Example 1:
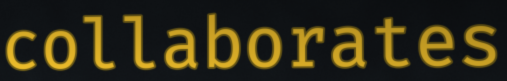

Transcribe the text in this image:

collaborates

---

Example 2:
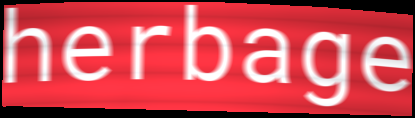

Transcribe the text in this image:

herbage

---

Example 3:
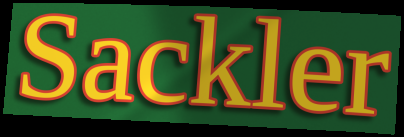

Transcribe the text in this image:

Sackler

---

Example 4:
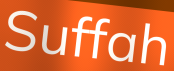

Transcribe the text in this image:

Suffah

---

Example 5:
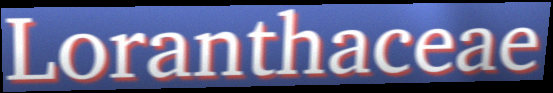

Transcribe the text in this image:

Loranthaceae